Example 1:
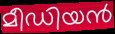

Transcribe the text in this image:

മീഡിയൻ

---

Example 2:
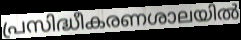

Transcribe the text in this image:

പ്രസിദ്ധീകരണശാലയിൽ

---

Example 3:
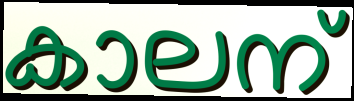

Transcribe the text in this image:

കാലന്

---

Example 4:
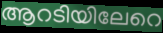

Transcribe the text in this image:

ആറടിയിലേറെ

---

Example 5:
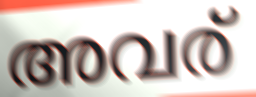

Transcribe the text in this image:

അവര്